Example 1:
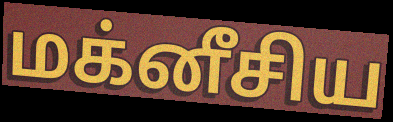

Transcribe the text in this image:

மக்னீசிய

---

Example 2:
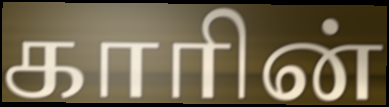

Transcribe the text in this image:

காரின்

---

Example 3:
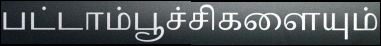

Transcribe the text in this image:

பட்டாம்பூச்சிகளையும்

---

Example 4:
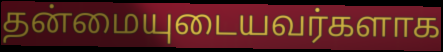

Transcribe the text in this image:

தன்மையுடையவர்களாக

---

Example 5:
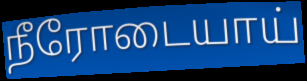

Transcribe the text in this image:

நீரோடையாய்